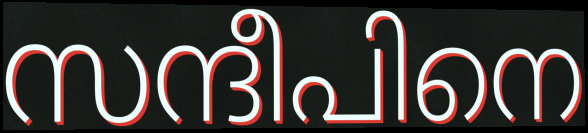
സന്ദീപിനെ